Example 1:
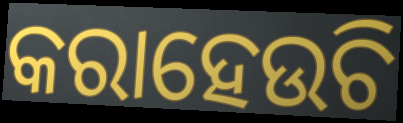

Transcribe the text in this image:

କରାହେଉଚି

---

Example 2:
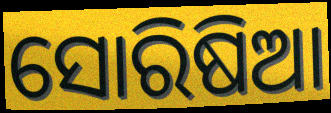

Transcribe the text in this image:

ସୋରିଷିଆ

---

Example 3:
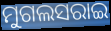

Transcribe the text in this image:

ମୁଗଲସରାଇ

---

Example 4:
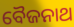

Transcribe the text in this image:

ବୈଜନାଥ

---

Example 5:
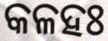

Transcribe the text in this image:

କଳହଃ